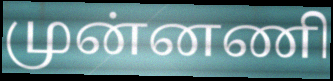
முன்னணி